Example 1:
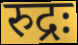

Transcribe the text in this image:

रुद्रः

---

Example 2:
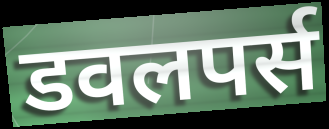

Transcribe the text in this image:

डवलपर्स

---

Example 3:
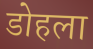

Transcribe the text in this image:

डोहला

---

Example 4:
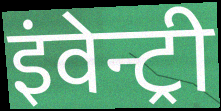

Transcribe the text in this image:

इंवेन्ट्री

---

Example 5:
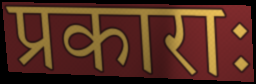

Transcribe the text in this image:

प्रकाराः